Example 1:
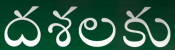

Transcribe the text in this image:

దశలకు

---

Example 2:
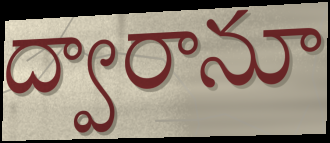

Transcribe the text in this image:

ద్వారానూ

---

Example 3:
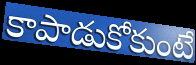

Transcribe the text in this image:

కాపాడుకోకుంటే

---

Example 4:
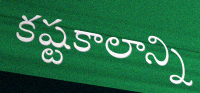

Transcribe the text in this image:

కష్టకాలాన్ని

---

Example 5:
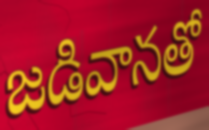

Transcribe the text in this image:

జడివానతో